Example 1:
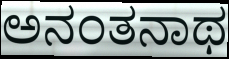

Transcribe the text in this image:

ಅನಂತನಾಥ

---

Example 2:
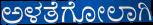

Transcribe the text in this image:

ಅಳತೆಗೋಲಾಗಿ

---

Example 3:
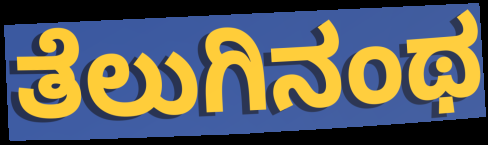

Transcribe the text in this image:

ತೆಲುಗಿನಂಥ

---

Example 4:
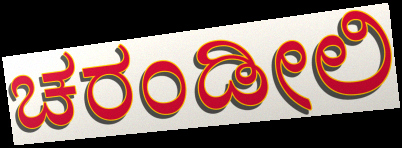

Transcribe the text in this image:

ಚರಂಡೀಲಿ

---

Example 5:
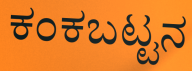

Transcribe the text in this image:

ಕಂಕಬಟ್ಟನ